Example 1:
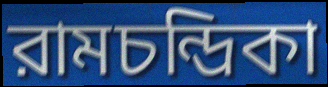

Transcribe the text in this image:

রামচন্দ্রিকা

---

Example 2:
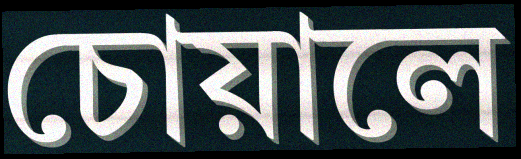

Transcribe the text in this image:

চোয়ালে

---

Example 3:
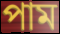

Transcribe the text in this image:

পাম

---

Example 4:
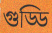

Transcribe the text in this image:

গুড্ডি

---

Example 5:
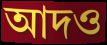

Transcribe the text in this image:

আদও